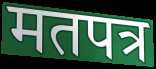
मतपत्र